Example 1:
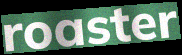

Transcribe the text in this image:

roaster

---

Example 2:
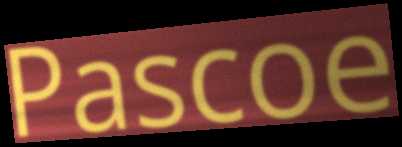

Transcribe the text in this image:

Pascoe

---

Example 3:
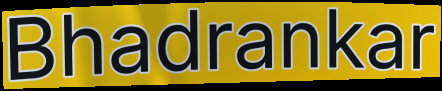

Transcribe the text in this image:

Bhadrankar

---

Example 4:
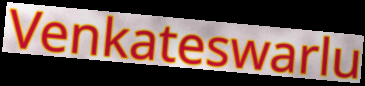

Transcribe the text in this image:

Venkateswarlu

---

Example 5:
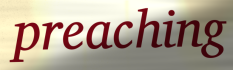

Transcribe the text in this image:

preaching